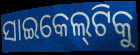
ସାଇକେଲ୍‌ଟିକୁ